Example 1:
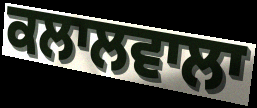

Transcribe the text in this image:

ਕਲਾਲਵਾਲਾ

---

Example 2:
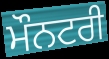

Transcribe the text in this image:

ਮੌਨਟਰੀ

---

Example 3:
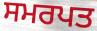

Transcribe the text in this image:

ਸਮਰਪਤ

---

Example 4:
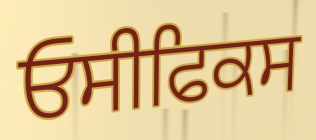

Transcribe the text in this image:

ਓਸੀਫਿਕਸ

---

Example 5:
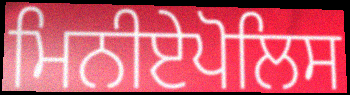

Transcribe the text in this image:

ਮਿਨੀਏਪੋਲਿਸ